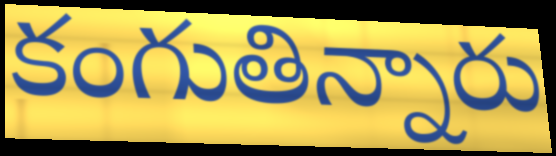
కంగుతిన్నారు